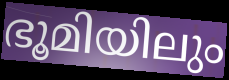
ഭൂമിയിലും